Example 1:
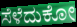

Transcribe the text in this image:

ಸೆಳೆದುಕೋ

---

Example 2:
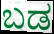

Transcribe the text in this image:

ಬಡ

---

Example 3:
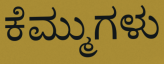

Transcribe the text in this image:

ಕೆಮ್ಮುಗಳು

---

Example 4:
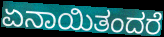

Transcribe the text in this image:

ಏನಾಯಿತಂದರೆ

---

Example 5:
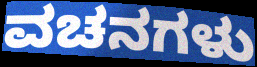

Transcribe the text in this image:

ವಚನಗಳು